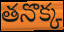
తనొక్క